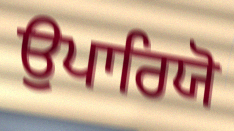
ਉਪਾਰਿਯੋ